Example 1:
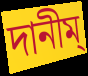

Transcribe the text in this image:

দানীম্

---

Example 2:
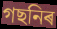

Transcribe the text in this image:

গছনিৰ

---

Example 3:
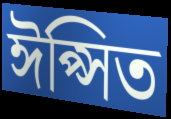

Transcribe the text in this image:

ঈপ্সিত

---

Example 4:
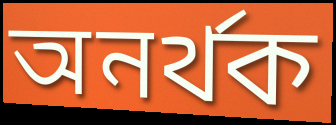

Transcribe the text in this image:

অনৰ্থক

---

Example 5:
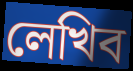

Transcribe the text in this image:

লেখিব